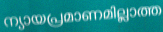
ന്യായപ്രമാണമില്ലാത്ത